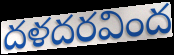
దళదరవింద